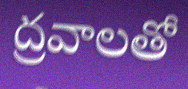
ద్రవాలతో